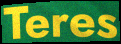
Teres